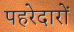
पहरेदारों